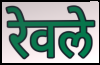
रेवले